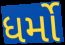
ધર્મો